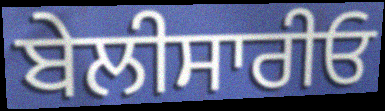
ਬੇਲੀਸਾਰੀਓ